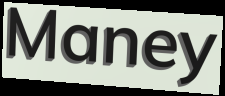
Maney